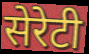
सेरेटी